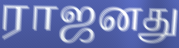
ராஜனது